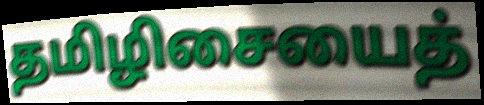
தமிழிசையைத்